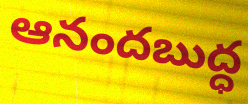
ఆనందబుద్ధ